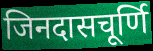
जिनदासचूर्णि